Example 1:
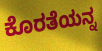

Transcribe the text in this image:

ಕೊರತೆಯನ್ನ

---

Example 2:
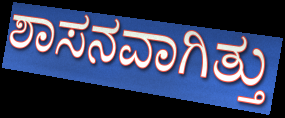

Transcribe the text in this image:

ಶಾಸನವಾಗಿತ್ತು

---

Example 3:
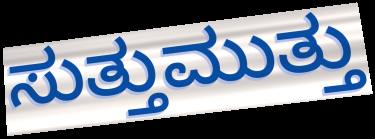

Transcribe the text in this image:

ಸುತ್ತುಮುತ್ತು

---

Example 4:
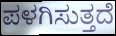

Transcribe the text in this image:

ಪಳಗಿಸುತ್ತದೆ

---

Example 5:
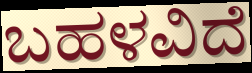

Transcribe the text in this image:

ಬಹಳವಿದೆ